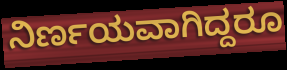
ನಿರ್ಣಯವಾಗಿದ್ದರೂ